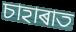
চাহাৰাত